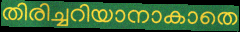
തിരിച്ചറിയാനാകാതെ